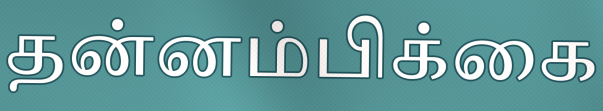
தன்னம்பிக்கை